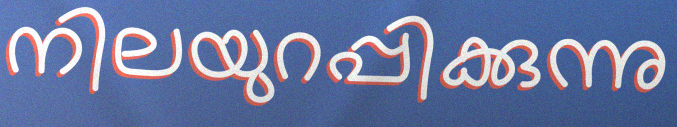
നിലയുറപ്പിക്കുന്നു